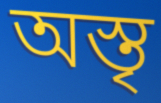
অস্তৃ